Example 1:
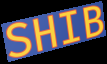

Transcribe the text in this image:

SHIB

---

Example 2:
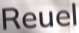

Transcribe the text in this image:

Reuel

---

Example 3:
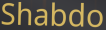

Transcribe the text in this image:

Shabdo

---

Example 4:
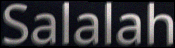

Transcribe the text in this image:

Salalah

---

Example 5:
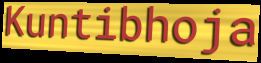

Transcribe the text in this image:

Kuntibhoja